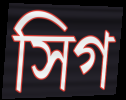
সিগ